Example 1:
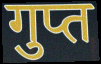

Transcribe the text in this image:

गुप्त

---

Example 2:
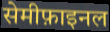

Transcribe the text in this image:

सेमीफ़ाइनल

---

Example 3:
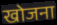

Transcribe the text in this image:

खोजना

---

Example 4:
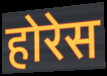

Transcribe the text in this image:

होरेस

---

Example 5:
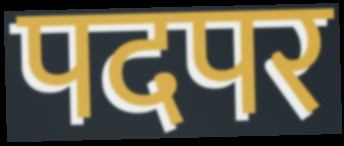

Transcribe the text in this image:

पदपर